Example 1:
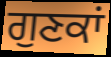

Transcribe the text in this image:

ਗੁਣਕਾਂ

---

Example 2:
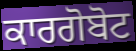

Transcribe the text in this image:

ਕਾਰਗੋਬੋਟ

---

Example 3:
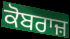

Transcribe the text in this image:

ਕੋਬਰਾਜ਼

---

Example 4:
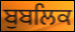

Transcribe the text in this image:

ਬੁਬਲਿਕ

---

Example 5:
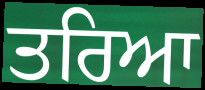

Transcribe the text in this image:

ਤਰਿਆ